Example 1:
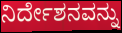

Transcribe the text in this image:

ನಿರ್ದೇಶನವನ್ನು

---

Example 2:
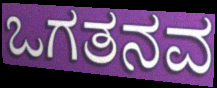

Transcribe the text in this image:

ಒಗತನವ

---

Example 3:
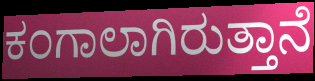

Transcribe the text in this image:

ಕಂಗಾಲಾಗಿರುತ್ತಾನೆ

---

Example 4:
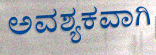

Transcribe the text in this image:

ಅವಶ್ಯಕವಾಗಿ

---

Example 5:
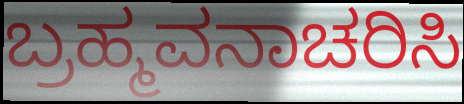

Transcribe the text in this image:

ಬ್ರಹ್ಮವನಾಚರಿಸಿ